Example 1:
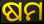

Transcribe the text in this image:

ଷମ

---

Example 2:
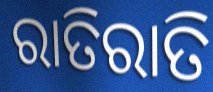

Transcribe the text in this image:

ରାତିରାତି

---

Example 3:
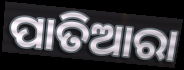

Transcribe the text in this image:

ପାତିଆରା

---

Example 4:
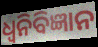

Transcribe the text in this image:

ଧ୍ୱନିବିଜ୍ଞାନ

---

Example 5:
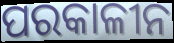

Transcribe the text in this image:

ପରକାଳୀନ